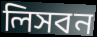
লিসবন